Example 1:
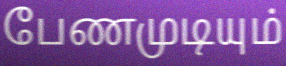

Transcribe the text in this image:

பேணமுடியும்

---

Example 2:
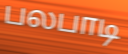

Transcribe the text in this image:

பலபாடி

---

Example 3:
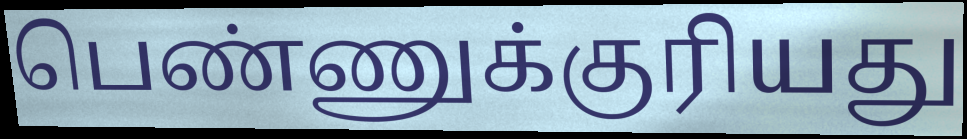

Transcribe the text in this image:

பெண்ணுக்குரியது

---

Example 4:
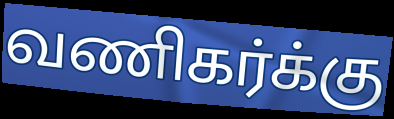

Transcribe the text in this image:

வணிகர்க்கு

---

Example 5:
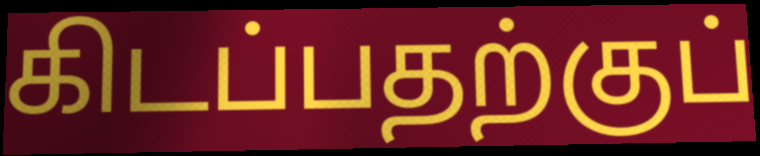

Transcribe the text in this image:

கிடப்பதற்குப்